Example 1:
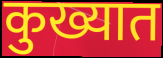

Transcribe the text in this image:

कुख्यात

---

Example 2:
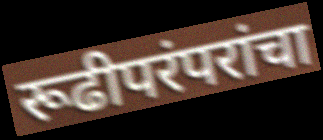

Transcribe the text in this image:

रूढीपरंपरांचा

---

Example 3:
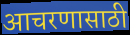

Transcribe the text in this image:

आचरणासाठी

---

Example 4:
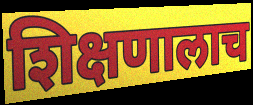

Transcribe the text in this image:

शिक्षणालाच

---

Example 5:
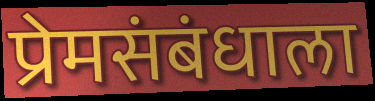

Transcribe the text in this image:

प्रेमसंबंधाला